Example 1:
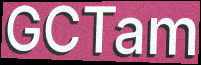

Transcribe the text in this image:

GCTam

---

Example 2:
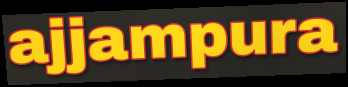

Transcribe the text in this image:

ajjampura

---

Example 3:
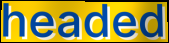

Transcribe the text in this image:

headed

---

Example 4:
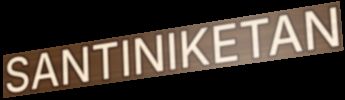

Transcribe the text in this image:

SANTINIKETAN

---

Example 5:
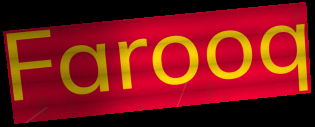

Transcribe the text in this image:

Farooq